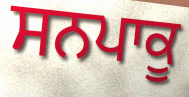
ਸਨਪਾਕੂ